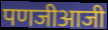
पणजीआजी